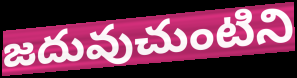
జదువుచుంటిని